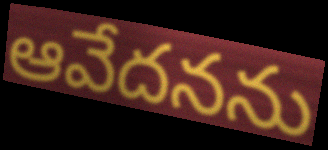
ఆవేదనను